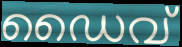
ഡൈവ്